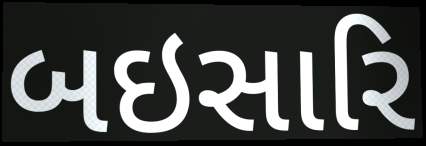
બઇસારિ